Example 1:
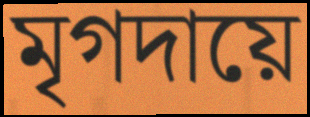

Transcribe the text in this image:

মৃগদায়ে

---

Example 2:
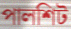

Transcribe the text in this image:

পালশিট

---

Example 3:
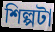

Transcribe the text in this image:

শিল্পটা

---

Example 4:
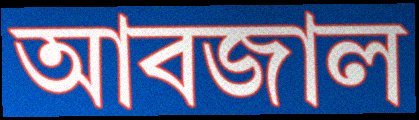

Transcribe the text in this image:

আবজাল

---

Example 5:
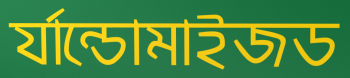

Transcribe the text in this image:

র্যান্ডোমাইজড